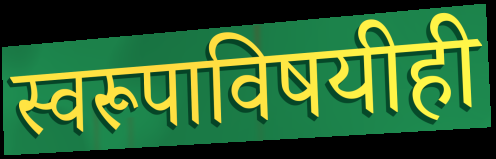
स्वरूपाविषयीही